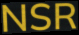
NSR